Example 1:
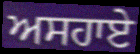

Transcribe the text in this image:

ਅਸਹਾਏ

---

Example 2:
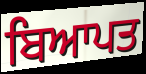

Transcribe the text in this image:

ਬਿਆਪਤ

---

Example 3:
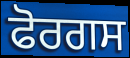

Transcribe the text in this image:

ਫੋਰਗਸ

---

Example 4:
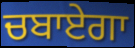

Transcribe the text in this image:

ਚਬਾਏਗਾ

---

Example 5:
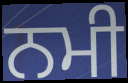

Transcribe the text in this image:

ਨਮੀ